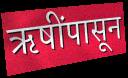
ऋषींपासून